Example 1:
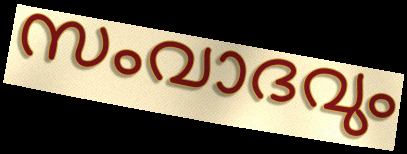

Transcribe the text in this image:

സംവാദവും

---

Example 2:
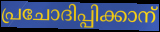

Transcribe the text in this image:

പ്രചോദിപ്പിക്കാന്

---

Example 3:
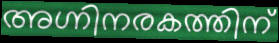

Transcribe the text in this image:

അഗ്നിനരകത്തിന്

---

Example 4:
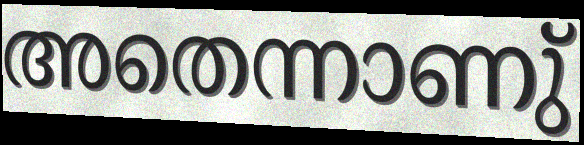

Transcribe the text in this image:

അതെന്നാണു്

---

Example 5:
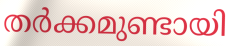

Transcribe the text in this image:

തർക്കമുണ്ടായി